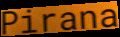
Pirana